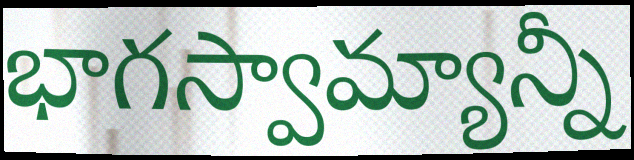
భాగస్వామ్యాన్నీ